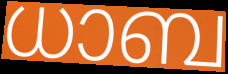
ധാബ